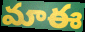
మాఈ